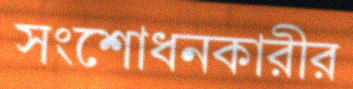
সংশোধনকারীর